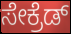
ಸೇಕ್ರೆಡ್